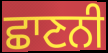
ਛਾਣਨੀ